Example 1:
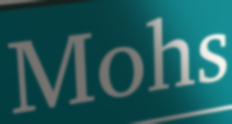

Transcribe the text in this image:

Mohs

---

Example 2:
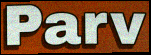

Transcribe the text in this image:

Parv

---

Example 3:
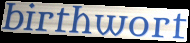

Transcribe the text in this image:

birthwort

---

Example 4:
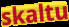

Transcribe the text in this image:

skaltu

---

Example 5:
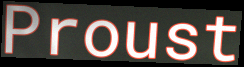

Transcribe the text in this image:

Proust